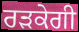
ਰੜਕੇਗੀ